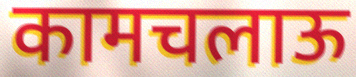
कामचलाऊ